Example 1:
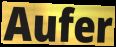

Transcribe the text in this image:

Aufer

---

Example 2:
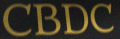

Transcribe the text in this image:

CBDC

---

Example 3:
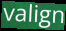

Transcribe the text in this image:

valign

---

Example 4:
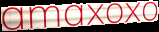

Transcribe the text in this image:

amaxoxo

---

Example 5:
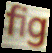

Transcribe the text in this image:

fig